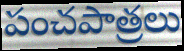
పంచపాత్రలు